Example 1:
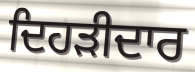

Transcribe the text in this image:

ਦਿਹੜੀਦਾਰ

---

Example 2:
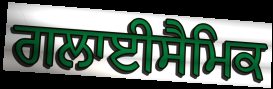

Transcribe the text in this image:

ਗਲਾਈਸੈਮਿਕ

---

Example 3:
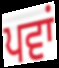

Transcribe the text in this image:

ਪਵਾਂ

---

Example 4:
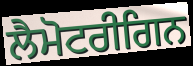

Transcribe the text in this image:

ਲੈਮੋਟਰੀਗਿਨ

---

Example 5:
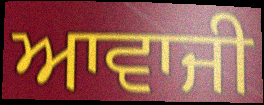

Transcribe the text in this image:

ਆਵਾਜੀ